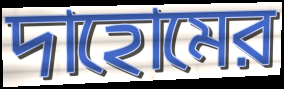
দাহোমের